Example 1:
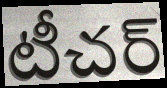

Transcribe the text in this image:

టీచర్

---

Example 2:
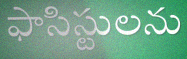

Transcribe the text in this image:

ఫాసిస్టులను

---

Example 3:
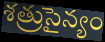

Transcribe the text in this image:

శత్రుసైన్యం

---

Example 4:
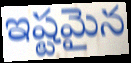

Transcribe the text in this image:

ఇష్టమైన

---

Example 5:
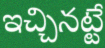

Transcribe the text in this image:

ఇచ్చినట్టే